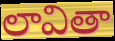
లావితా